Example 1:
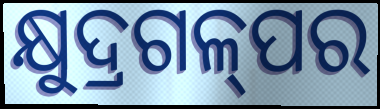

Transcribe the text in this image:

କ୍ଷୁଦ୍ରଗଳ୍‌ପର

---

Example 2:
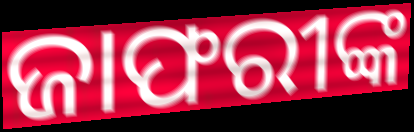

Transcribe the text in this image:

ଜାଫରୀଙ୍କ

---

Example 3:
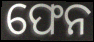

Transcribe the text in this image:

ଫେନ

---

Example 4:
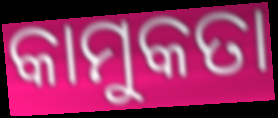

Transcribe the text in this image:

କାମୁକତା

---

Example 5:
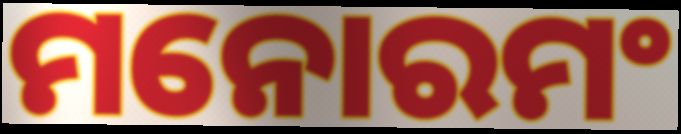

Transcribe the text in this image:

ମନୋରମଂ